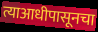
त्याआधीपासूनचा